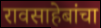
रावसाहेबांचा